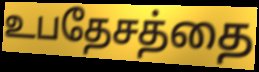
உபதேசத்தை